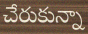
చేరుకున్నా